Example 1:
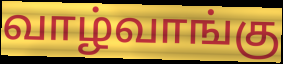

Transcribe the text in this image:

வாழ்வாங்கு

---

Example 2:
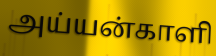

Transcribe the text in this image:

அய்யன்காளி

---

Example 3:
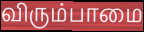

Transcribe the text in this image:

விரும்பாமை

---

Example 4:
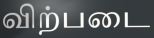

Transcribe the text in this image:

விற்படை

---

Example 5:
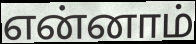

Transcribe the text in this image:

என்னாம்